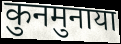
कुनमुनाया